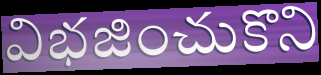
విభజించుకొని